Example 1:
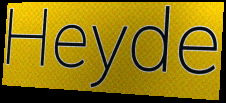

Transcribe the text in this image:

Heyde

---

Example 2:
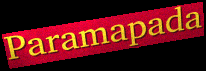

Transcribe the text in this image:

Paramapada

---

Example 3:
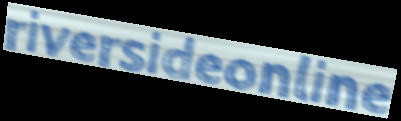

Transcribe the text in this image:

riversideonline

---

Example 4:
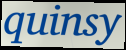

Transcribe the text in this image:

quinsy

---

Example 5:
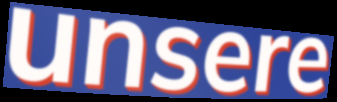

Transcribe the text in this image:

unsere